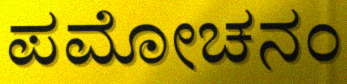
ಪಮೋಚನಂ